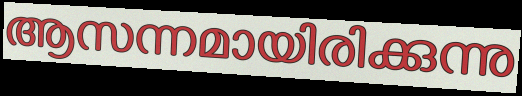
ആസന്നമായിരിക്കുന്നു